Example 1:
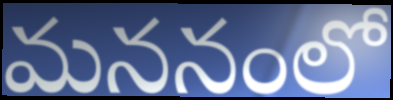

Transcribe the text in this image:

మననంలో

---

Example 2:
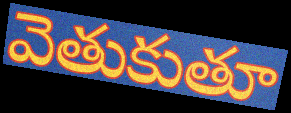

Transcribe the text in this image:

వెతుకుతూ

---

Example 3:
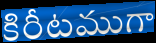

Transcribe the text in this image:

కిరీటముగా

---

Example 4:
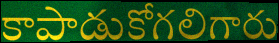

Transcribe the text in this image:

కాపాడుకోగలిగారు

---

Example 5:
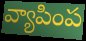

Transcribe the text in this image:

వ్యాపింప